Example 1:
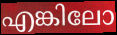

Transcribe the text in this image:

എങ്കിലോ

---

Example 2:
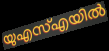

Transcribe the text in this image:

യുഎസ്എയിൽ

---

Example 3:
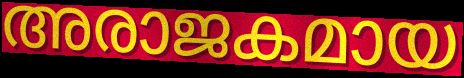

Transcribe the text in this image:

അരാജകമായ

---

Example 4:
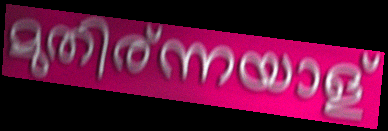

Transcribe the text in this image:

മുതിര്ന്നയാള്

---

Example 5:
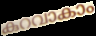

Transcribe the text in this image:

കുറവാകാം